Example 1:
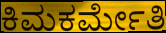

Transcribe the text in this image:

ಕಿಮಕರ್ಮೇತಿ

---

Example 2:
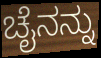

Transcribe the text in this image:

ಚೈನನ್ನು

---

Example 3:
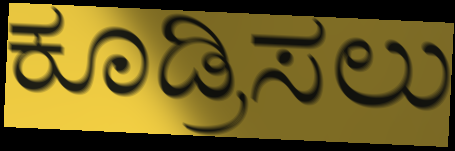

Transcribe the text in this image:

ಕೂಡ್ರಿಸಲು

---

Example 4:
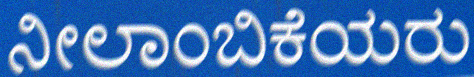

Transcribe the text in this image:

ನೀಲಾಂಬಿಕೆಯರು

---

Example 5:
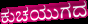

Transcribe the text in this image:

ಕುಚಯುಗದ